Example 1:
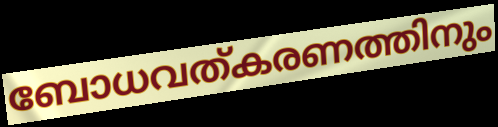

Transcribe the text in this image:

ബോധവത്കരണത്തിനും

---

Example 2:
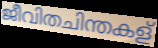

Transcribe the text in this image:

ജീവിതചിന്തകള്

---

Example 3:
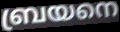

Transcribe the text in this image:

ബ്രയനെ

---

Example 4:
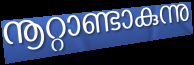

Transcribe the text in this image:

നൂറ്റാണ്ടാകുന്നു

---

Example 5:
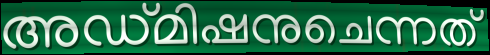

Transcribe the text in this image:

അഡ്മിഷനുചെന്നത്